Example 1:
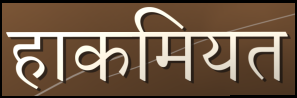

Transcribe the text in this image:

हाकमियत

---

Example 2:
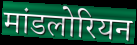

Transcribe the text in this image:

मांडलोरियन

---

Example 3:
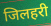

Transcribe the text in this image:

जिलहरी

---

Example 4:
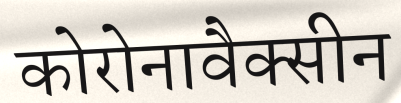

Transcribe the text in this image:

कोरोनावैक्सीन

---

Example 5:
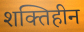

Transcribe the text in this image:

शक्तिहीन